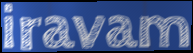
iravam